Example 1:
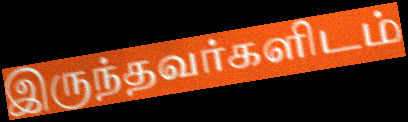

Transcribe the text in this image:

இருந்தவர்களிடம்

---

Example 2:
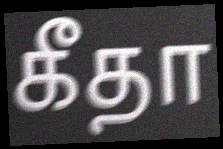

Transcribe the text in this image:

கீதா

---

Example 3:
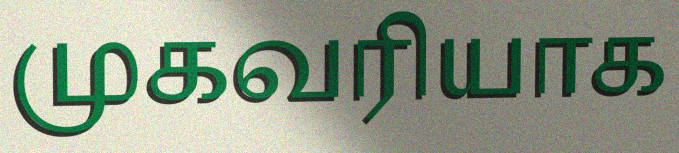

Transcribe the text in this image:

முகவரியாக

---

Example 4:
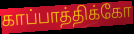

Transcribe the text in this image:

காப்பாத்திக்கோ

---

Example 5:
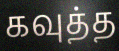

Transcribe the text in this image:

கவுத்த